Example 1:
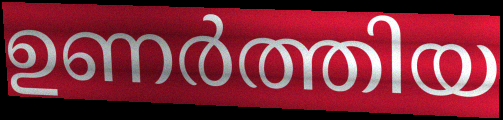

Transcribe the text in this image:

ഉണർത്തിയ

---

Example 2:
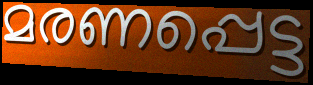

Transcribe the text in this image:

മരണപ്പെട്ട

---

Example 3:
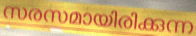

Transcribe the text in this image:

സരസമായിരിക്കുന്ന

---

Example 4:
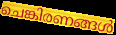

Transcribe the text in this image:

ചെങ്കിരണങ്ങൾ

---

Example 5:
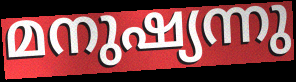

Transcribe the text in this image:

മനുഷ്യന്നു